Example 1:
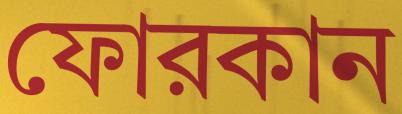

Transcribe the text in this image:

ফোরকান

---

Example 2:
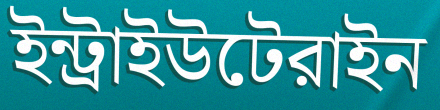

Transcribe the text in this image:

ইন্ট্রাইউটেরাইন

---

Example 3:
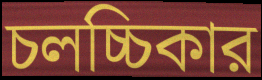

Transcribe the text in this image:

চলচ্চিকার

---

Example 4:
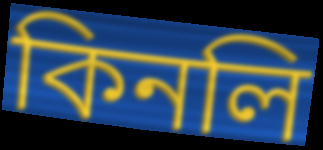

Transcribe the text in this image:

কিনলি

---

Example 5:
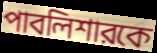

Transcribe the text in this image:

পাবলিশারকে